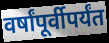
वर्षांपूर्वीपर्यंत